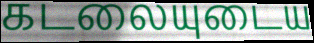
கடலையுடைய